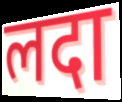
लदा